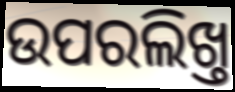
ଉପରଲିଖ୍ତ